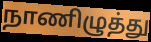
நாணிழுத்து